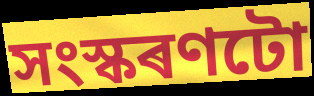
সংস্কৰণটো